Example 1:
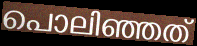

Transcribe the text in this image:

പൊലിഞ്ഞത്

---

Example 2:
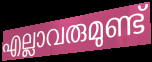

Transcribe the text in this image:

എല്ലാവരുമുണ്ട്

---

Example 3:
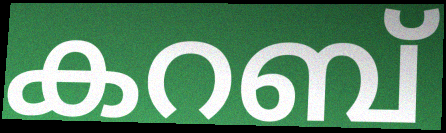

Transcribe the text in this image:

കറബ്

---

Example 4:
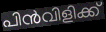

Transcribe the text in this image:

പിൻവിളിക്ക്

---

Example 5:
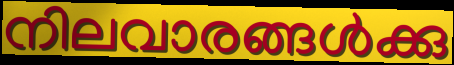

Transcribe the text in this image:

നിലവാരങ്ങൾക്കു